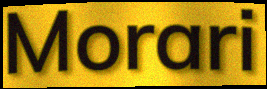
Morari